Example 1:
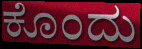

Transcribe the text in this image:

ಕೊಂದು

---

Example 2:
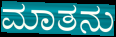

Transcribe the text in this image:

ಮಾತನು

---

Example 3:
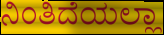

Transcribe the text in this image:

ನಿಂತಿದೆಯಲ್ಲಾ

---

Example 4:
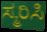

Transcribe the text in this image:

ಸ್ಮರಿಸಿ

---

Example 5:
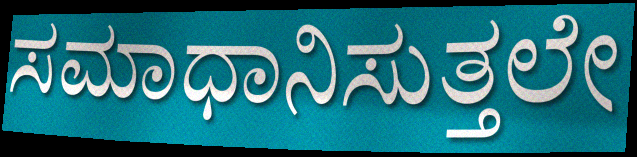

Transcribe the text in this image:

ಸಮಾಧಾನಿಸುತ್ತಲೇ